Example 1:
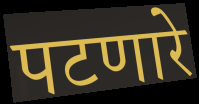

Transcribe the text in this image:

पटणारे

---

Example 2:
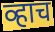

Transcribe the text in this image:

व्हाच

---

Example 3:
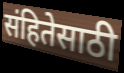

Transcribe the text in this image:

संहितेसाठी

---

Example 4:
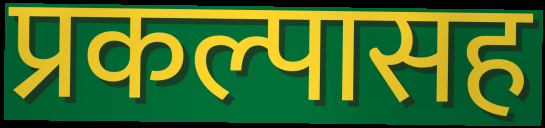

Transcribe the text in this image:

प्रकल्पासह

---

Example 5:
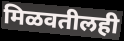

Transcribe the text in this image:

मिळवतीलही